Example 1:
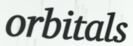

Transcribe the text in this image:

orbitals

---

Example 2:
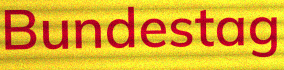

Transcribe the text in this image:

Bundestag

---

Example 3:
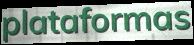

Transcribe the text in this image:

plataformas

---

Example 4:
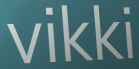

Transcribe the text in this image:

vikki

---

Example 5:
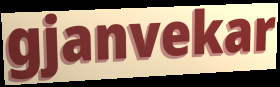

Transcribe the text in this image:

gjanvekar